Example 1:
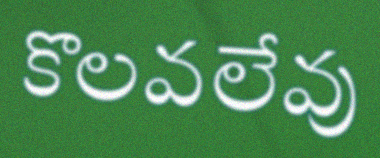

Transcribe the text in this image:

కొలవలేవు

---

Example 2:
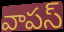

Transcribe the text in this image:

వాపస్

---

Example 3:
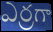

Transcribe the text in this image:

ఎర్రగా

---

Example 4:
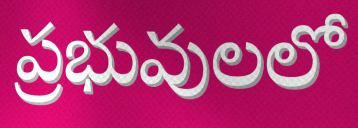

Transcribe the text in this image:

ప్రభువులలో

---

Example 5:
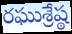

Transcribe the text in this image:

రఘుశ్రేష్ఠ